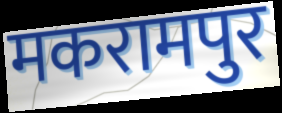
मकरामपुर